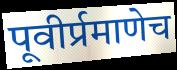
पूवीर्प्रमाणेच